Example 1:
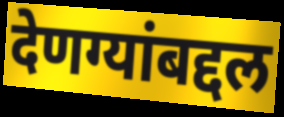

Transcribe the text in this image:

देणग्यांबद्दल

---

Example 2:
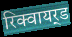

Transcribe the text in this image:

रिक्वायर्ड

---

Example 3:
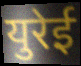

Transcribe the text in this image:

युरेई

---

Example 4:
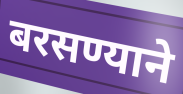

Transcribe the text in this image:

बरसण्याने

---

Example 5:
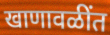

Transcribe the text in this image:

खाणावळींत